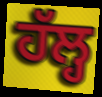
ਹੱਲ੍ਹ